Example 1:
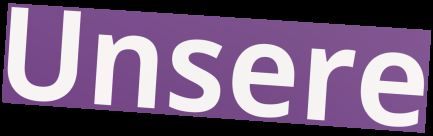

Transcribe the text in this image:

Unsere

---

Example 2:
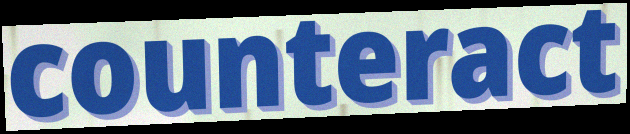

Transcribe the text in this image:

counteract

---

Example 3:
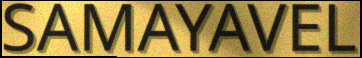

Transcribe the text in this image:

SAMAYAVEL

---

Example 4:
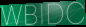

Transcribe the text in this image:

WBIDC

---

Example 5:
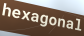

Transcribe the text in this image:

hexagonal